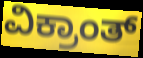
ವಿಕ್ರಾಂತ್